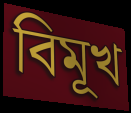
বিমূখ